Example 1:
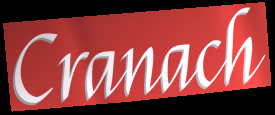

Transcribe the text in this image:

Cranach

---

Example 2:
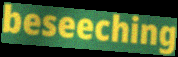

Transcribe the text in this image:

beseeching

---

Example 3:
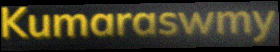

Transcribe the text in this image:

Kumaraswmy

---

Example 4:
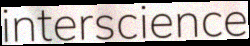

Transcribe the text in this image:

interscience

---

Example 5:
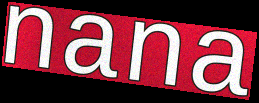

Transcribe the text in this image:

nana